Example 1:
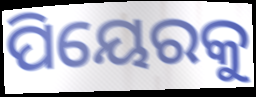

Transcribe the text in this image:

ପିୟେରକୁ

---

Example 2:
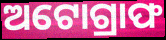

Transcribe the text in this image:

ଅଟୋଗ୍ରାଫ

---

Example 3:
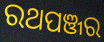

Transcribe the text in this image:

ରଥପଞ୍ଜର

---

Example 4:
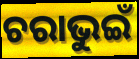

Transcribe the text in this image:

ଚରାଭୁଇଁ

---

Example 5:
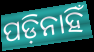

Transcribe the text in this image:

ପଡ଼ିନାହିଁ